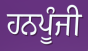
ਹਨਪੂੰਜੀ